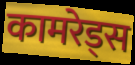
कामरेड्स